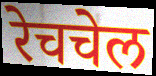
रेचचेल